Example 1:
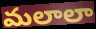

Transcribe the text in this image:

మలాలా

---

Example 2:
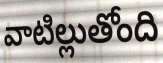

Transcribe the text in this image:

వాటిల్లుతోంది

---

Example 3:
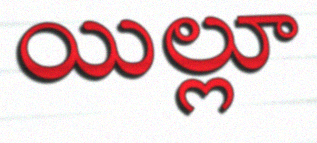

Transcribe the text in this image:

యిల్లూ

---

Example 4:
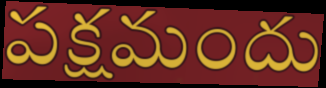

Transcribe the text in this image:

పక్షమందు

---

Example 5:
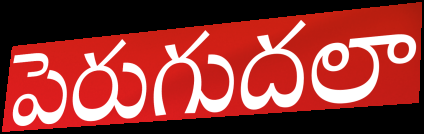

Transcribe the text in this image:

పెరుగుదలా